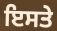
ਇਸਤੇ